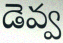
డెవ్వ